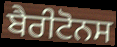
ਬੈਰੀਟੋਨਸ